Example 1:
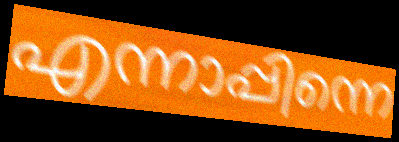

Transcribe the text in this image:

എന്നാപ്പിന്നെ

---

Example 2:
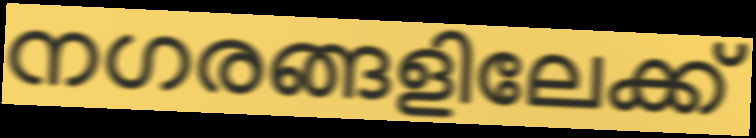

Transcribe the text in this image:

നഗരങ്ങളിലേക്ക്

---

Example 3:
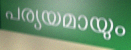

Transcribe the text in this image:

പര്യയമായും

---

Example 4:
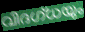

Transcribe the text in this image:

വിദഗ്ധയും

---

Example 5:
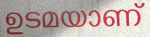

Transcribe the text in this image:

ഉടമയാണ്